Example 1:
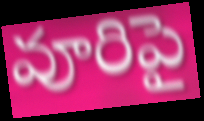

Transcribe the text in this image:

వూరిపై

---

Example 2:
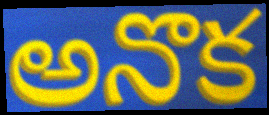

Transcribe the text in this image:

అనొక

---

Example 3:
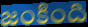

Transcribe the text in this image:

జంకింది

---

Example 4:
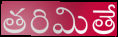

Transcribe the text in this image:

తరిమితే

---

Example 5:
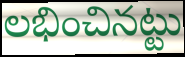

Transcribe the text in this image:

లభించినట్టు